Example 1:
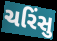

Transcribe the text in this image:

ચરિંસુ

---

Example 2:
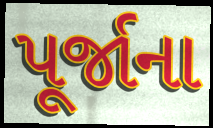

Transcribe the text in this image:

પૂર્જાના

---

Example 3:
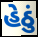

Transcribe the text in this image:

હેઠું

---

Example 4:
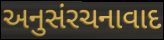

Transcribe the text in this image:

અનુસંરચનાવાદ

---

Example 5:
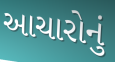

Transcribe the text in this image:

આચારોનું